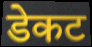
डेकट